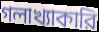
গলাখ্যাকারি